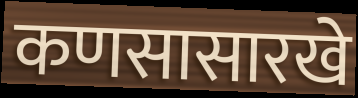
कणसासारखे